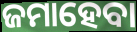
ଜମାହେବା